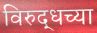
विरुद्धच्या